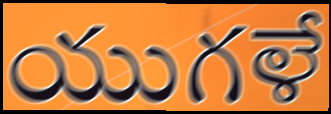
యుగళే